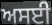
ਅਸਈ